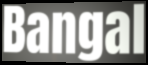
Bangal